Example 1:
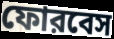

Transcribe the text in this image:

ফোরবেস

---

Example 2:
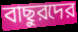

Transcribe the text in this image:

বাছুরদের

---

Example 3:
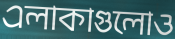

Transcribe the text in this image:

এলাকাগুলোও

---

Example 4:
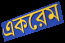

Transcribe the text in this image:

একরেম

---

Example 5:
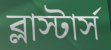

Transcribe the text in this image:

ব্লাস্টার্স